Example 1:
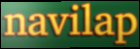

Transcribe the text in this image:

navilap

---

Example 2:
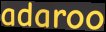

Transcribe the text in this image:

adaroo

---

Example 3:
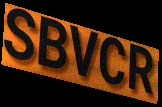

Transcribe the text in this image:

SBVCR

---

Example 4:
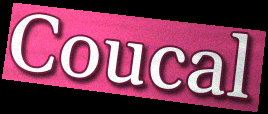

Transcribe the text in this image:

Coucal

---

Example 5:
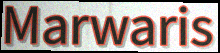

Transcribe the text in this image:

Marwaris